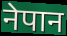
नेपान